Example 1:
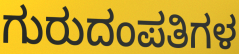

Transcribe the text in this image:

ಗುರುದಂಪತಿಗಳ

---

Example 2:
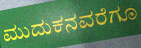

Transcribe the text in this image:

ಮುದುಕನವರೆಗೂ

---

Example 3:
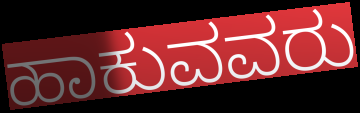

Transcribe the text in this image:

ಹಾಕುವವರು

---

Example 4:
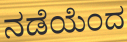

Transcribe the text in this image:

ನಡೆಯೆಂದ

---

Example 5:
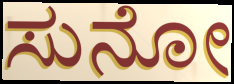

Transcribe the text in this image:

ಸುನೋ